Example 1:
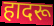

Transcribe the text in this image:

हादरू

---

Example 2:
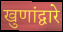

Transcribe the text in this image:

खुणांद्वारे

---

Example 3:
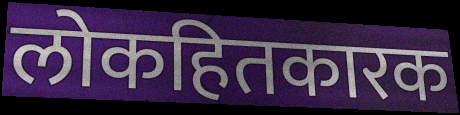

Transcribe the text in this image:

लोकहितकारक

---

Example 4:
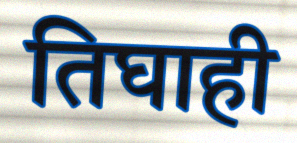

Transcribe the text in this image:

तिघाही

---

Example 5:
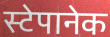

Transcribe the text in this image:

स्टेपानेक